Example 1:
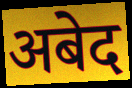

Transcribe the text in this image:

अबेद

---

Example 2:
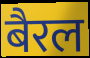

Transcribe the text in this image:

बैरल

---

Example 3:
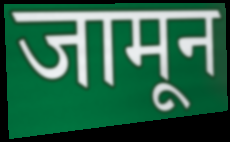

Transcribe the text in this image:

जामून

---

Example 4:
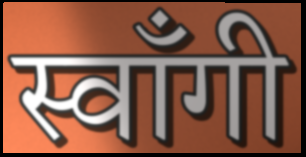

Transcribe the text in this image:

स्वाँगी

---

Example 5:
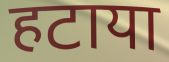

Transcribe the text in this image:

हटाया